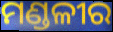
ମଣ୍ଡଳୀର